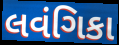
લવંગિકા